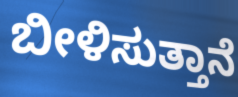
ಬೀಳಿಸುತ್ತಾನೆ